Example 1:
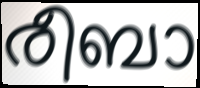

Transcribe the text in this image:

രീബാ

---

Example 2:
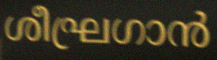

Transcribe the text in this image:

ശീഘ്രഗാൻ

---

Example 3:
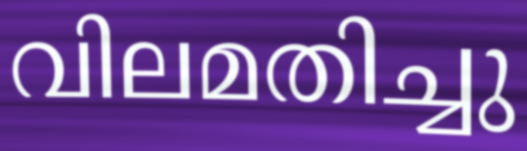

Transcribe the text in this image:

വിലമതിച്ചു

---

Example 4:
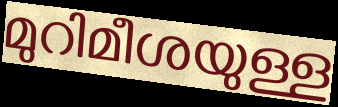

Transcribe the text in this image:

മുറിമീശയുള്ള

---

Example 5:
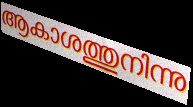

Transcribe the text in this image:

ആകാശത്തുനിന്നു